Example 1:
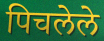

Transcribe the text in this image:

पिचलेले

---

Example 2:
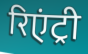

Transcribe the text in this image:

रिएंट्री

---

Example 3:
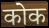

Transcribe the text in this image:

कोक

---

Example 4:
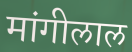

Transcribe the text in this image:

मांगीलाल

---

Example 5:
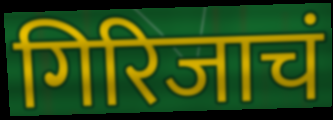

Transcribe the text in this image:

गिरिजाचं